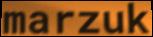
marzuk